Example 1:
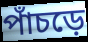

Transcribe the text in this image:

পাঁচড়ে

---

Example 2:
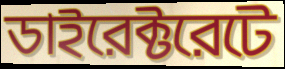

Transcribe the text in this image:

ডাইরেক্টরেটে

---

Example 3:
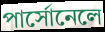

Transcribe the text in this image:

পার্সোনেলে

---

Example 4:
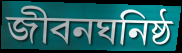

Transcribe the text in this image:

জীবনঘনিষ্ঠ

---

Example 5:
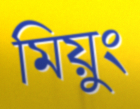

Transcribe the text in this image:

মিয়ুং